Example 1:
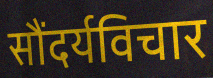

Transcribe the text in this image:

सौंदर्यविचार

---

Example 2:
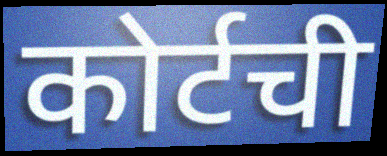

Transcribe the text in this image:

कोर्टची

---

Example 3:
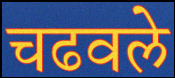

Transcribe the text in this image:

चढवले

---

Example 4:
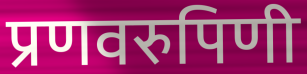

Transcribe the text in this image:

प्रणवरुपिणी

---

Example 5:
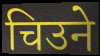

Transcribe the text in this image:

चिउने